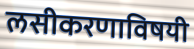
लसीकरणाविषयी